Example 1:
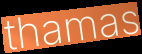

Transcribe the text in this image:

thamas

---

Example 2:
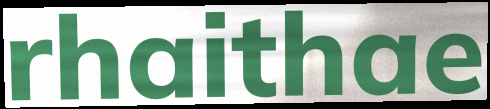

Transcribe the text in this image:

rhaithae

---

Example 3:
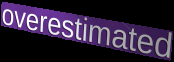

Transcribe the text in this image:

overestimated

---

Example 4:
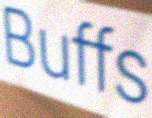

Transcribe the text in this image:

Buffs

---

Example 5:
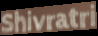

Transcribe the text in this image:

Shivratri